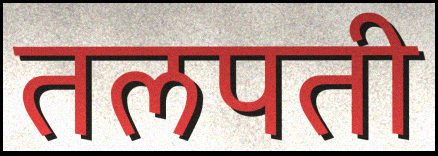
तलपती